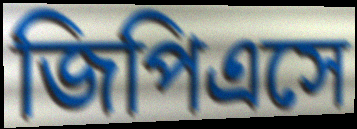
জিপিএসে